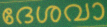
ദേശവാ